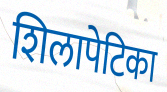
शिलापेटिका